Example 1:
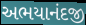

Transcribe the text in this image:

અભયાનંદજી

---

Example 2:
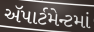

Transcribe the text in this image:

ઍપાર્ટમેન્ટમાં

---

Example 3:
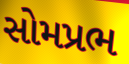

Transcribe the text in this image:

સોમપ્રભ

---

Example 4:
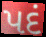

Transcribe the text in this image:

પદં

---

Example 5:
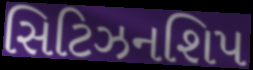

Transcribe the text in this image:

સિટિઝનશિપ